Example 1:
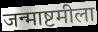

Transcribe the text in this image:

जन्माष्टमीला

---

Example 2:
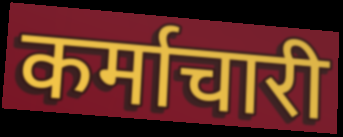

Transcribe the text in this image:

कर्माचारी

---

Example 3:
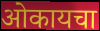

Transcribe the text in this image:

ओकायचा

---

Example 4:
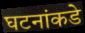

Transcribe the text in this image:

घटनांकडे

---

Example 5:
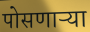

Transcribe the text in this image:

पोसणाऱ्या